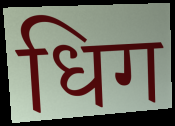
धिग